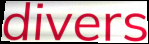
divers